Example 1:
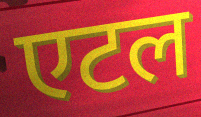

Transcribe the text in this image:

एटल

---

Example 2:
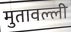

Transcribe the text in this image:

मुतावल्ली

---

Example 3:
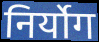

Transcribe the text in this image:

निर्योग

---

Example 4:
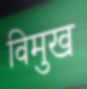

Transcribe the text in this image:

विमुख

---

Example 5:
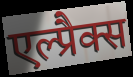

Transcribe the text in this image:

एल्प्रैक्स